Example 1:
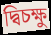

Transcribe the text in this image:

দ্বিচক্ষু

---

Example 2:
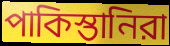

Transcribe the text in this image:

পাকিস্তানিরা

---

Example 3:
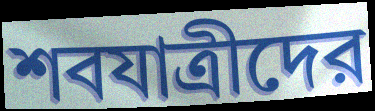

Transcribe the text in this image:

শবযাত্রীদের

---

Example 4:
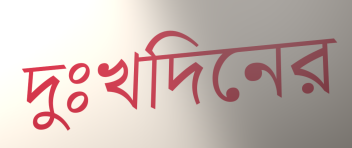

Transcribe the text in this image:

দুঃখদিনের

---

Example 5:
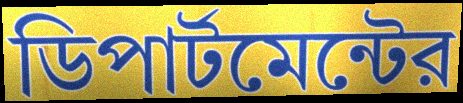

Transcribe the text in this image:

ডিপার্টমেন্টের